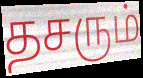
தசரும்